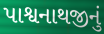
પાશ્વનાથજીનું